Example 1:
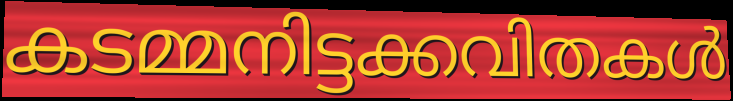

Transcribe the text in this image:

കടമ്മനിട്ടക്കവിതകൾ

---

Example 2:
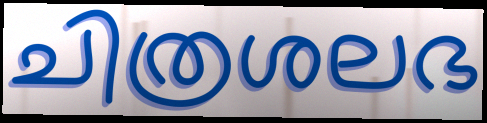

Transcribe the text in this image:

ചിത്രശലഭ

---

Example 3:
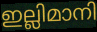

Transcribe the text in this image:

ഇല്ലിമാനി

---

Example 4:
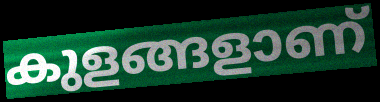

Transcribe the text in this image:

കുളങ്ങളാണ്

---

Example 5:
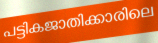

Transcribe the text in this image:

പട്ടികജാതിക്കാരിലെ